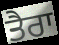
ਤੈਰਾ